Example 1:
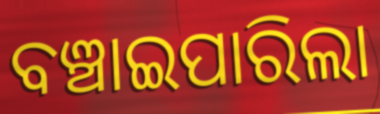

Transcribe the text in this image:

ବଞ୍ଚାଇପାରିଲା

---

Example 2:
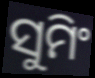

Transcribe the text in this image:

ସୁମିଂ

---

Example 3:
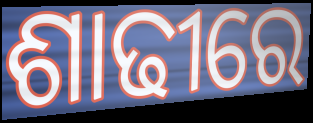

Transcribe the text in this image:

ଶାଢୀରେ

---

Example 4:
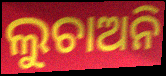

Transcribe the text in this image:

ଲୁଚାଅନି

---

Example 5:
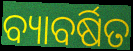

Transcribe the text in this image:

ବ୍ୟାବର୍ଷିତ